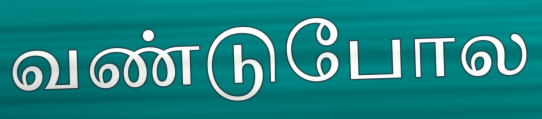
வண்டுபோல